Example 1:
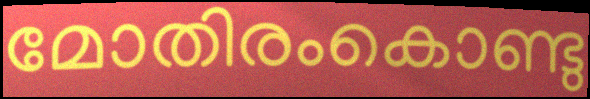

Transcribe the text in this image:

മോതിരംകൊണ്ടു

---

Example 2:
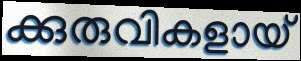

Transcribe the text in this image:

ക്കുരുവികളായ്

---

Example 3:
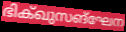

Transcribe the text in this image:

ഭിക്ഖുസങ്ഘേന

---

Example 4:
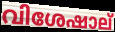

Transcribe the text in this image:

വിശേഷാല്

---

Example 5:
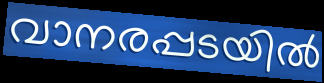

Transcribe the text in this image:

വാനരപ്പടയിൽ